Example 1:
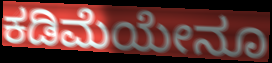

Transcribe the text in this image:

ಕಡಿಮೆಯೇನೂ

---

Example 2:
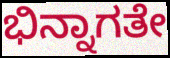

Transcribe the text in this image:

ಭಿನ್ನಾಗತೇ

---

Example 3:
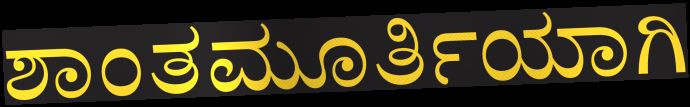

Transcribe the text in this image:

ಶಾಂತಮೂರ್ತಿಯಾಗಿ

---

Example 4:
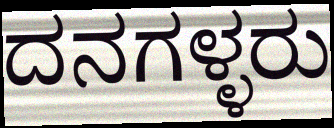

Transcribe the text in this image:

ದನಗಳ್ಳರು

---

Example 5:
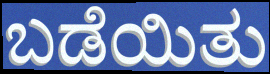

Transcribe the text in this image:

ಬಡೆಯಿತು